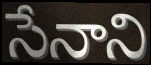
సేనాని